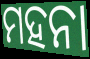
ମହନା